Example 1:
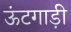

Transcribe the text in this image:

ऊंटगाड़ी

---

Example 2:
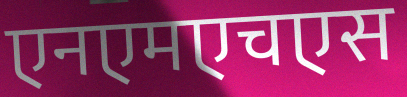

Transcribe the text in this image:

एनएमएचएस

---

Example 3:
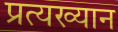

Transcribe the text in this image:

प्रत्यख्यान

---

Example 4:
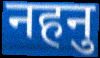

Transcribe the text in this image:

नहनु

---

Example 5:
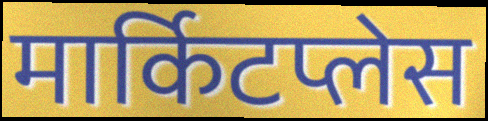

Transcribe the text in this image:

मार्किटप्लेस